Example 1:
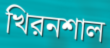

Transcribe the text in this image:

খিরনশাল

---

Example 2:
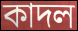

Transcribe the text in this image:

কাদল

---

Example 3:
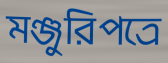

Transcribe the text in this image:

মঞ্জুরিপত্রে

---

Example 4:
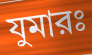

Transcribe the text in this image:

যুমারঃ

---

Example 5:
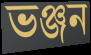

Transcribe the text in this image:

ভঞ্জন